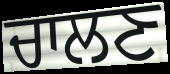
ਚਾਲਣ